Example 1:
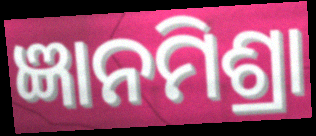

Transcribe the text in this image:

ଜ୍ଞାନମିଶ୍ରା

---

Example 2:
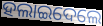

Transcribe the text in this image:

ହଲାଇଦେଲେ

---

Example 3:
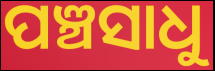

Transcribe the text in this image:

ପଞ୍ଚସାଧୁ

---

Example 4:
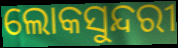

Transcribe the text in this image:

ଲୋକସୁନ୍ଦରୀ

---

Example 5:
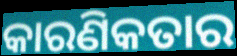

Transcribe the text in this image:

କାରଣିକତାର